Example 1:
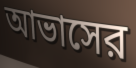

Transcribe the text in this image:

আভাসের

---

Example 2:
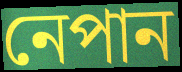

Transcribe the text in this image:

নেপান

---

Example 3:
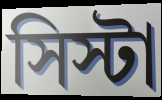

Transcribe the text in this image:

সিস্টা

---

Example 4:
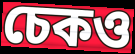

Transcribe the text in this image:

চেকও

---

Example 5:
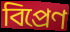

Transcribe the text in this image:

বিপ্রেণ